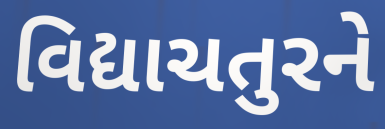
વિદ્યાચતુરને